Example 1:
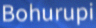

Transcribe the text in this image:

Bohurupi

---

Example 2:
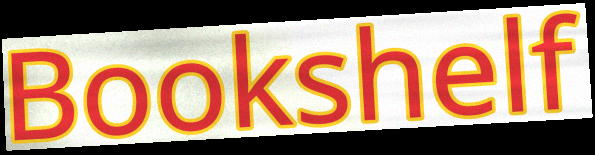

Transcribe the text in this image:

Bookshelf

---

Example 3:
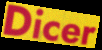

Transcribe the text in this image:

Dicer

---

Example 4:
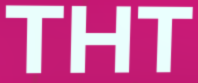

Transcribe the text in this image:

THT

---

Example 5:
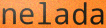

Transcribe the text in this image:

nelada